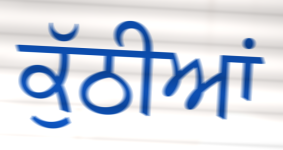
ਕੁੱਠੀਆਂ